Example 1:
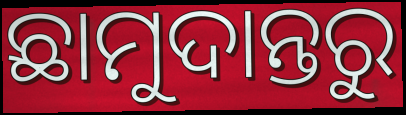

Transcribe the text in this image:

ଛାମୁଦାନ୍ତରୁ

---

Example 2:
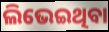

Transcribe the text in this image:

ଲିଭେଇଥିବା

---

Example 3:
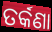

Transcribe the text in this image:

ତର୍କଣା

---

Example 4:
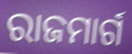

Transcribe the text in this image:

ରାଜମାର୍ଗ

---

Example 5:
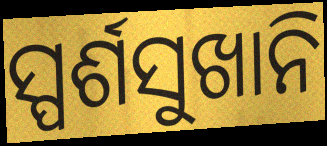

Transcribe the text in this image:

ସ୍ପର୍ଶସୁଖାନି